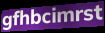
gfhbcimrst